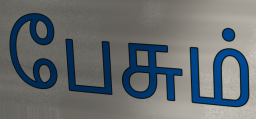
பேசும்